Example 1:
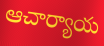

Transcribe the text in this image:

ఆచార్యాయ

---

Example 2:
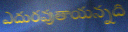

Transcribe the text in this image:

ఎదురవుతాయన్నది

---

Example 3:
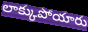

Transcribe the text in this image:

లాక్కుపోయారు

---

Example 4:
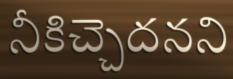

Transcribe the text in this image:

నీకిచ్చెదనని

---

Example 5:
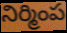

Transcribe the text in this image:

నిర్మింప